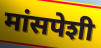
मांसपेशी